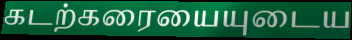
கடற்கரையையுடைய